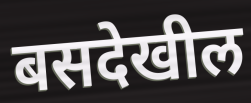
बसदेखील